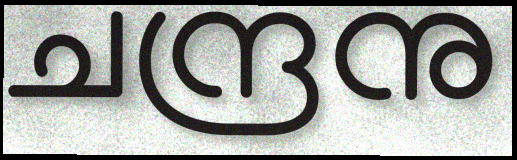
ചന്ദ്രനു